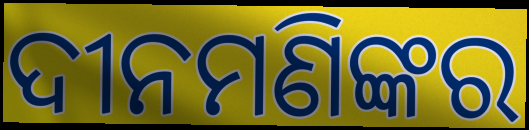
ଦୀନମଣିଙ୍କର